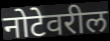
नोटेवरील